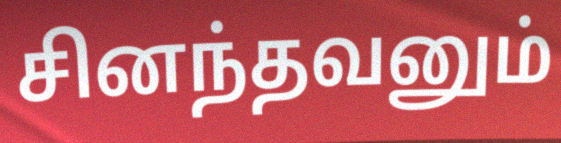
சினந்தவனும்